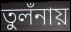
তুলঁনায়